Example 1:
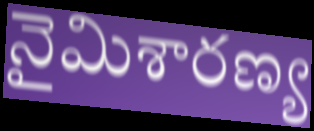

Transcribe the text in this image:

నైమిశారణ్య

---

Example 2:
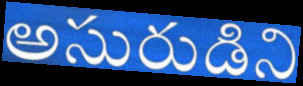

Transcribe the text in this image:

అసురుడిని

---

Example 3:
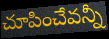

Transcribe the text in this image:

చూపించేవన్నీ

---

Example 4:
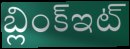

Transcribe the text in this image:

బ్లింక్ఇట్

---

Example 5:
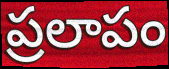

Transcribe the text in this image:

ప్రలాపం